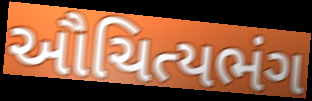
ઔચિત્યભંગ